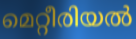
മെറ്റീരിയൽ